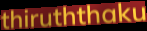
thiruththaku